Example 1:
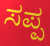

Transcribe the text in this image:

ಸಪ್ಪ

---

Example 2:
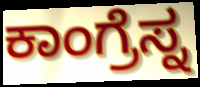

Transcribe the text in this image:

ಕಾಂಗ್ರೆಸ್ನ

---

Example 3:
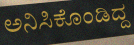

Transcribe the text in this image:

ಅನಿಸಿಕೊಂಡಿದ್ದ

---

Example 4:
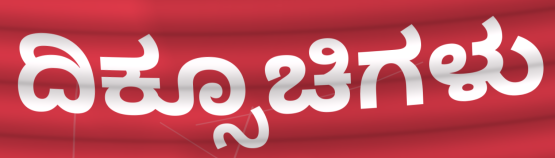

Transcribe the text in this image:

ದಿಕ್ಸೂಚಿಗಳು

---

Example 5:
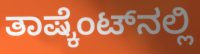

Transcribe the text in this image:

ತಾಷ್ಕೆಂಟ್‌ನಲ್ಲಿ